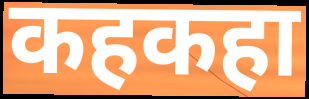
कहकहा